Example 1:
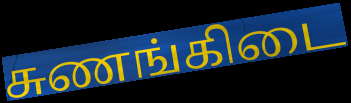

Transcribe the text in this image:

சுணங்கிடை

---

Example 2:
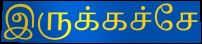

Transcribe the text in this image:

இருக்கச்சே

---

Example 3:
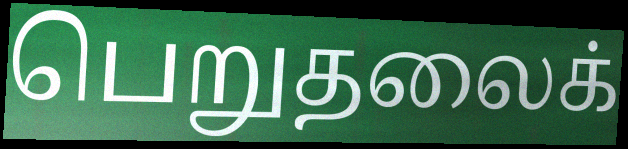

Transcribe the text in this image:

பெறுதலைக்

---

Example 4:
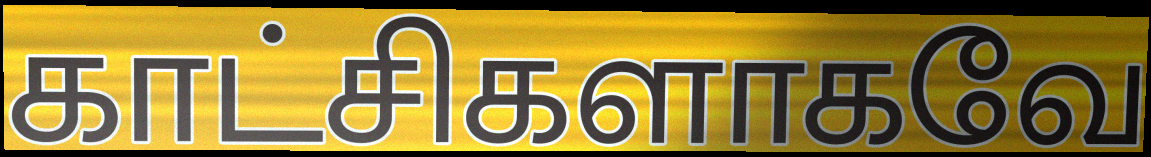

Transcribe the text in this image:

காட்சிகளாகவே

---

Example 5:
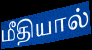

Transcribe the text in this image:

மீதியால்